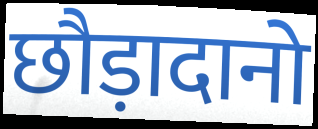
छौड़ादानो